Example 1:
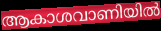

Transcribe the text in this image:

ആകാശവാണിയിൽ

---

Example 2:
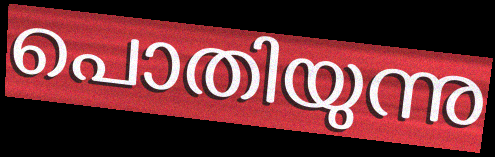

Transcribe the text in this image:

പൊതിയുന്നു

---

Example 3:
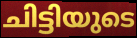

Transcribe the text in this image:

ചിട്ടിയുടെ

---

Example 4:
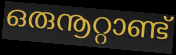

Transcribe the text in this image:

ഒരുനൂറ്റാണ്ട്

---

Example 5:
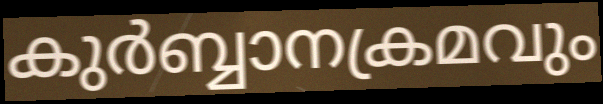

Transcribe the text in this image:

കുർബ്ബാനക്രമവും